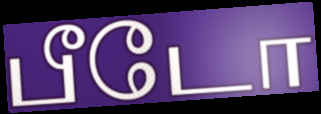
பீடோ